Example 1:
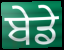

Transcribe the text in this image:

ਬੇਡੇ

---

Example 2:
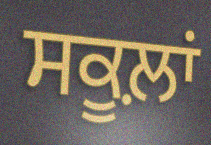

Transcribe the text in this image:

ਸਕੂਲ਼ਾਂ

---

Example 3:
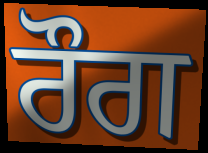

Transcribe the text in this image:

ਰੌਗ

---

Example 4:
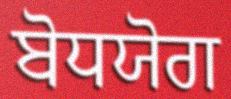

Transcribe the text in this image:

ਬੋਧਯੋਗ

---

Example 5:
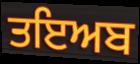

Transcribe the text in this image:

ਤਇਅਬ